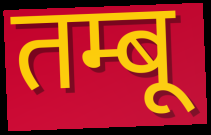
तम्बू